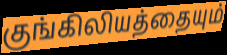
குங்கிலியத்தையும்